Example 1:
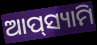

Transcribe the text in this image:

ଆପ୍‌ସ୍ୟାମି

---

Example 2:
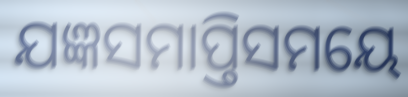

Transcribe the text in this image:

ଯଜ୍ଞସମାପ୍ତିସମୟେ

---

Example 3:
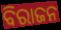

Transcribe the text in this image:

ବିରାଜନ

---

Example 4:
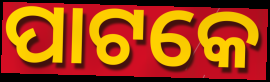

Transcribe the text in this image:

ପାଟକେ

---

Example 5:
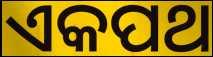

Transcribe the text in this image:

ଏକପଥ